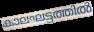
കാലഘട്ടത്തിൽ